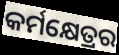
କର୍ମକ୍ଷେତ୍ରର